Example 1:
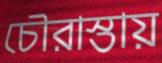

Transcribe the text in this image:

চৌরাস্তায়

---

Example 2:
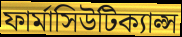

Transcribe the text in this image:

ফার্মাসিউটিক্যাল্স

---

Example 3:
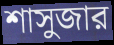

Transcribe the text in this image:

শাসুজার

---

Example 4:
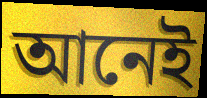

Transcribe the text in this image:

আনেই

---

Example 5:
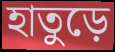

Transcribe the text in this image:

হাতুড়ে